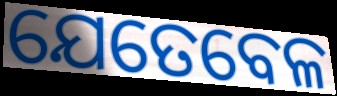
ଯେତେବେଳ